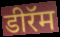
डीरॅम